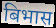
बिभास